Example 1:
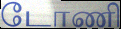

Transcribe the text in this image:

டோணி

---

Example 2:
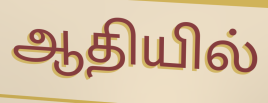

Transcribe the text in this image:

ஆதியில்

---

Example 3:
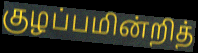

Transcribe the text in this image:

குழப்பமின்றித்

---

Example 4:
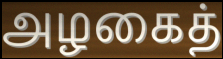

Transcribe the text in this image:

அழகைத்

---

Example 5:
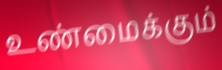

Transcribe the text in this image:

உண்மைக்கும்